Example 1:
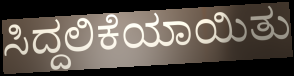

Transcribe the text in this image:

ಸಿದ್ದಲಿಕೆಯಾಯಿತು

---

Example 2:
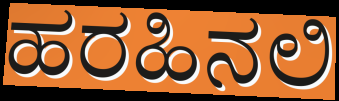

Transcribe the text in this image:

ಹರಹಿನಲಿ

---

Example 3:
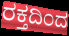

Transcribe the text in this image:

ರಕ್ತದಿಂದ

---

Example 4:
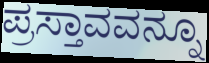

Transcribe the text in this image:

ಪ್ರಸ್ತಾವವನ್ನೂ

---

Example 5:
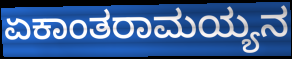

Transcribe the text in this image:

ಏಕಾಂತರಾಮಯ್ಯನ